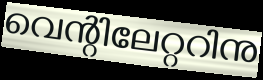
വെന്റിലേറ്ററിനു